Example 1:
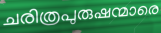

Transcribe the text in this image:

ചരിത്രപുരുഷന്മാരെ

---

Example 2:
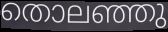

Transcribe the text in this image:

തൊലഞ്ഞു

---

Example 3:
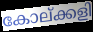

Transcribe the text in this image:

കോല്ക്കളി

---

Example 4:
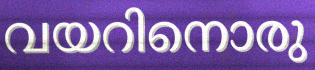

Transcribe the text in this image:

വയറിനൊരു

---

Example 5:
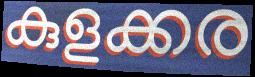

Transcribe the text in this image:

കുളക്കര